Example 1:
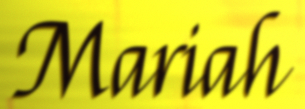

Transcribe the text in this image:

Mariah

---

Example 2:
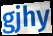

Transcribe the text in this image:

gjhy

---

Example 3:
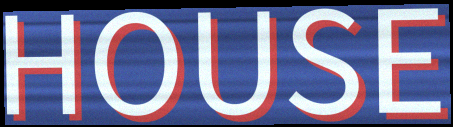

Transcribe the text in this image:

HOUSE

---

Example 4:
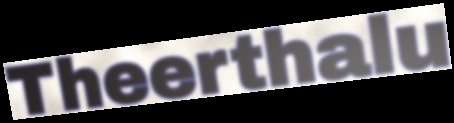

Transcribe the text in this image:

Theerthalu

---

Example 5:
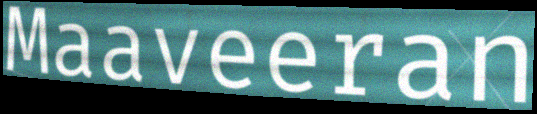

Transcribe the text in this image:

Maaveeran